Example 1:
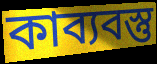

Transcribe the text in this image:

কাব্যবস্তু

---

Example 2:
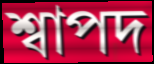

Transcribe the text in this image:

শ্বাপদ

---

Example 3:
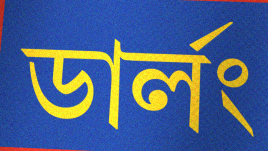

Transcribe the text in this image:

ডার্লং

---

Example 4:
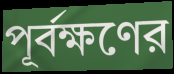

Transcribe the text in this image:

পূর্বক্ষণের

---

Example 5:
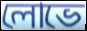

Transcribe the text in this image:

লোভে